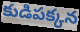
కుడిపక్కన